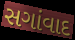
સગાંવાદ